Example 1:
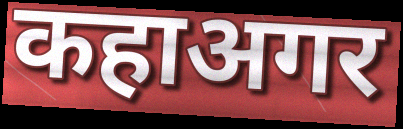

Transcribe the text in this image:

कहाअगर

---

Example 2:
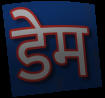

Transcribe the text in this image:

डेम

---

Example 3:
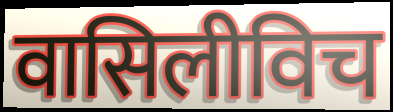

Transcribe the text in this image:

वासिलीविच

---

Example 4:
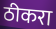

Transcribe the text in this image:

ठीकरा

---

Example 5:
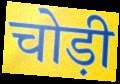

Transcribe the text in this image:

चोड़ी